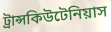
ট্রান্সকিউটেনিয়াস